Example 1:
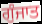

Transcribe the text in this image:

ਗੁੰਜਾਤ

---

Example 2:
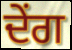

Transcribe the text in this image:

ਦੇਂਗ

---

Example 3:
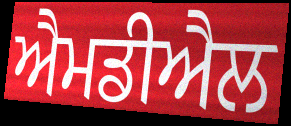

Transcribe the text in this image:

ਐਮਡੀਐਲ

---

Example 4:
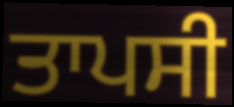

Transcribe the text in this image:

ਤਾਪਸੀ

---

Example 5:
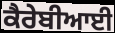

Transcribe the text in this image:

ਕੈਰੇਬੀਆਈ